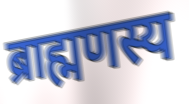
ब्राह्मणस्य